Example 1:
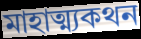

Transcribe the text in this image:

মাহাত্ম্যকথন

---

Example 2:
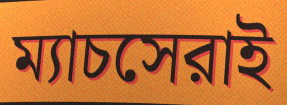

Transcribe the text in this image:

ম্যাচসেরাই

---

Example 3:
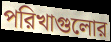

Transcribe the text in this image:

পরিখাগুলোর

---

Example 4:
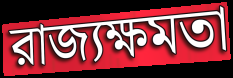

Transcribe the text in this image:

রাজ্যক্ষমতা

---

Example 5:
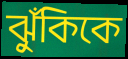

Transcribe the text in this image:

ঝুঁকিকে